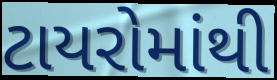
ટાયરોમાંથી